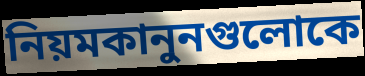
নিয়মকানুনগুলোকে